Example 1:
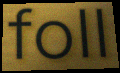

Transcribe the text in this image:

foll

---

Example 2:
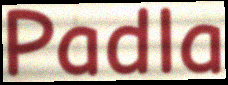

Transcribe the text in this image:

Padla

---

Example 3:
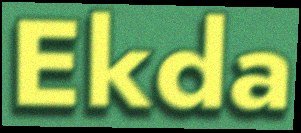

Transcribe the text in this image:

Ekda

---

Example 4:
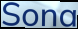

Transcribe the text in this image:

Sona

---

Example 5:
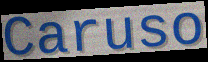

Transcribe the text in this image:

Caruso